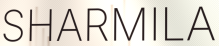
SHARMILA